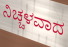
ನಿಚ್ಚಳವಾದ